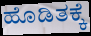
ಹೊಡಿತಕ್ಕೆ